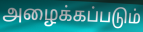
அழைக்கப்படும்